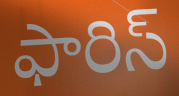
ఫారిస్